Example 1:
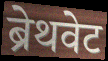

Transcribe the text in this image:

ब्रेथवेट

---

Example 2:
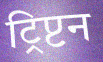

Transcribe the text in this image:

ट्रिप्टन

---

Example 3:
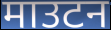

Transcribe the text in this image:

माउटन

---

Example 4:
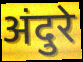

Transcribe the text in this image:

अंदुरे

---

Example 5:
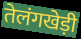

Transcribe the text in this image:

तेलंगखेड़ी